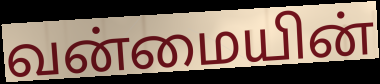
வன்மையின்